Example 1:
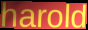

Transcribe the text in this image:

harold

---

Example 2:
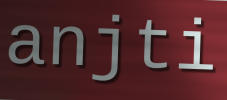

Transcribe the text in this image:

anjti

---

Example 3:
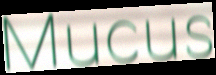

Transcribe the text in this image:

Mucus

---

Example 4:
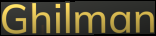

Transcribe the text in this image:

Ghilman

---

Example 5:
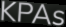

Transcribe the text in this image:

KPAs